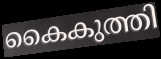
കൈകുത്തി